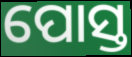
ପୋସ୍ତ